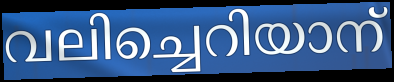
വലിച്ചെറിയാന്